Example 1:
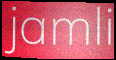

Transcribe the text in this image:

jamli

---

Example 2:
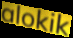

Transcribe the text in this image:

alokik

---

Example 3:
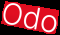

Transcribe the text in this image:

Odo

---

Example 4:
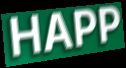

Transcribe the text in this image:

HAPP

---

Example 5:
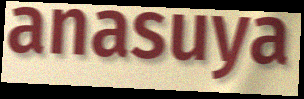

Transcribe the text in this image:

anasuya